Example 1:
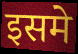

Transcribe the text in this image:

इसमे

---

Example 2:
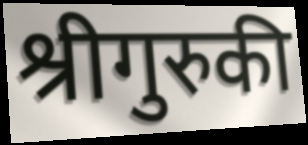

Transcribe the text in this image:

श्रीगुरुकी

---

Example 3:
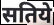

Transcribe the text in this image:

सतिये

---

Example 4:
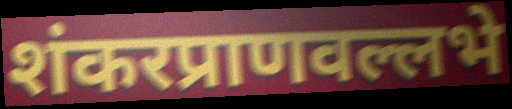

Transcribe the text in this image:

शंकरप्राणवल्लभे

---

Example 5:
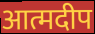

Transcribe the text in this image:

आत्मदीप